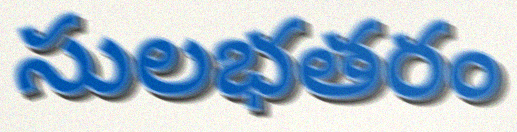
సులభతరం